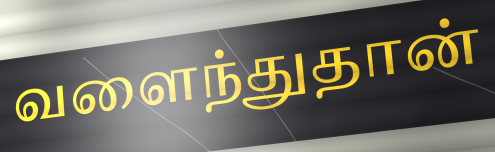
வளைந்துதான்